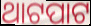
ଥାଟପାଟ